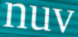
nuv